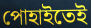
পোহাইতেই